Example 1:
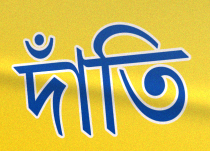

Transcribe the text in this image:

দাঁতি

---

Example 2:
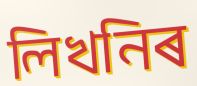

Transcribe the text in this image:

লিখনিৰ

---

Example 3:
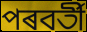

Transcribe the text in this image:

পৰবৰ্তী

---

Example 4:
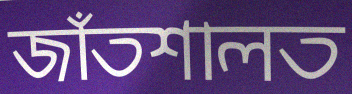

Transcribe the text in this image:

জাঁতশালত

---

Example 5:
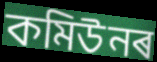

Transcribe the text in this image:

কমিউনৰ